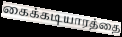
கைக்கடியாரத்தை